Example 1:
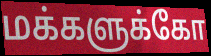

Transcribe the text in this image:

மக்களுக்கோ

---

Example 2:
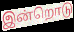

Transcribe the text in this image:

இன்றொடு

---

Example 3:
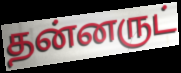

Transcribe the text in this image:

தன்னருட்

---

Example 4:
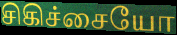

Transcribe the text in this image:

சிகிச்சையோ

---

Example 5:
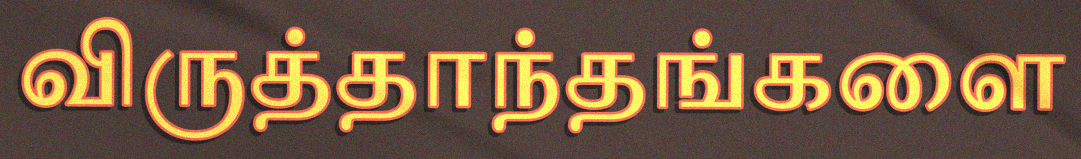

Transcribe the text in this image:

விருத்தாந்தங்களை